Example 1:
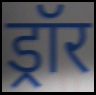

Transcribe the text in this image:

ड्रॉर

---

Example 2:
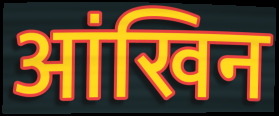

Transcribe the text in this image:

आंखिन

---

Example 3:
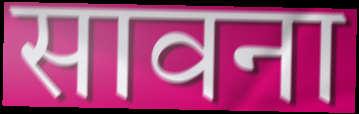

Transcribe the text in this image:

सावना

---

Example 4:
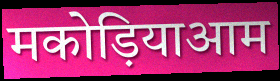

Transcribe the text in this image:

मकोड़ियाआम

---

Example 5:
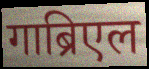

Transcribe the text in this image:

गाब्रिएल